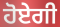
ਹੋਏਗੀ